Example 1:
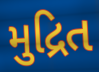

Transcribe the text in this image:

મુદ્રિત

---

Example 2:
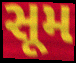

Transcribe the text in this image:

સૂમ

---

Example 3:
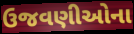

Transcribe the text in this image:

ઉજવણીઓના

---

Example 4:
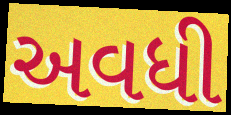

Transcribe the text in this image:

અવધી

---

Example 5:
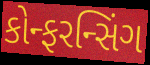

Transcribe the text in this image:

કોન્ફરન્સિંગ